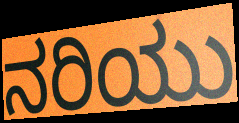
ನರಿಯು